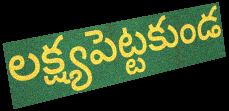
లక్ష్యపెట్టకుండ